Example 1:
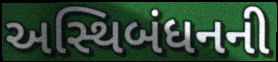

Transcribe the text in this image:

અસ્થિબંધનની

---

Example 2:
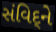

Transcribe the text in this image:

સંવિદ્‌ને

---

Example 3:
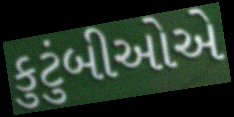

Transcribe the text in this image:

કુટુંબીઓએ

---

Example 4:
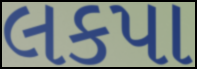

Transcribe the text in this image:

લકપા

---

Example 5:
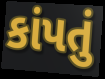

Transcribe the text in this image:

કાંપતું